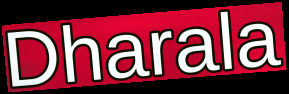
Dharala